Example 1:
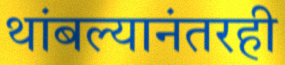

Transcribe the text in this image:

थांबल्यानंतरही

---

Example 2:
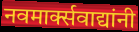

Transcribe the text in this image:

नवमार्क्सवाद्यांनी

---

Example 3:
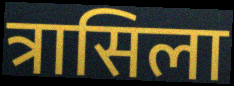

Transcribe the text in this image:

त्रासिला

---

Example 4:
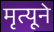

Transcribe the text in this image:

मृत्यूने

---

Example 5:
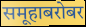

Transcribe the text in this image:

समूहाबरोबर